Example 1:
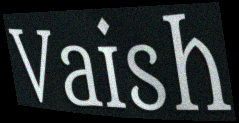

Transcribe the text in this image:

Vaish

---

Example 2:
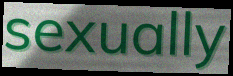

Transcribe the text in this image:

sexually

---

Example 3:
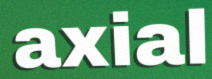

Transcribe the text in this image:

axial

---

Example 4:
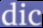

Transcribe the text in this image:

dic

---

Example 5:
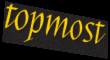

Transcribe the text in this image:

topmost